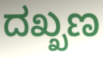
ದಖ್ಖಣ